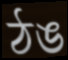
ঠঙ